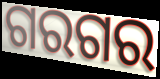
ଗରଗର